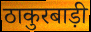
ठाकुरबाड़ी